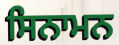
ਸਿਨਾਮਨ